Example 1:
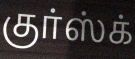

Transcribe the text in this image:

குர்ஸ்க்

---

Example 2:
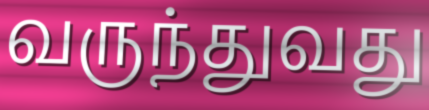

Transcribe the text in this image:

வருந்துவது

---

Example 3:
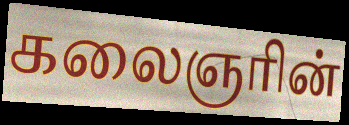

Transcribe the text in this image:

கலைஞரின்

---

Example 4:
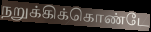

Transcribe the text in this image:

நறுக்கிக்கொண்டே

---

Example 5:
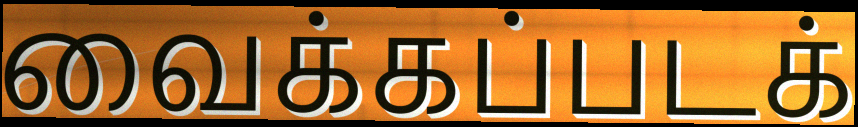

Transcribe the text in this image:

வைக்கப்படக்